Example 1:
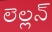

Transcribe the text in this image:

లెల్లన్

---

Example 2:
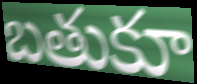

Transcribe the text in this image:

బతుకూ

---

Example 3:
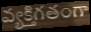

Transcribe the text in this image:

వ్యక్తిగతంగా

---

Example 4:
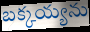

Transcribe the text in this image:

బక్కయ్యను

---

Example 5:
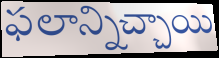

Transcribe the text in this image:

ఫలాన్నిచ్చాయి